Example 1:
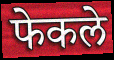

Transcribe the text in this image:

फेकले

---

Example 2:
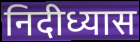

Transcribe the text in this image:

निदीध्यास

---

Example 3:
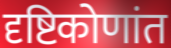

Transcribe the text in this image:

दृष्टिकोणांत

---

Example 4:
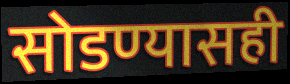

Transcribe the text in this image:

सोडण्यासही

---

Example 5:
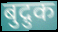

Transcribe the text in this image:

बुद्रुक